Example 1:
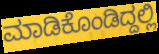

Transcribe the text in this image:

ಮಾಡಿಕೊಂಡಿದ್ದಲ್ಲಿ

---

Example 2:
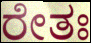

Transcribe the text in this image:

ರೇತಃ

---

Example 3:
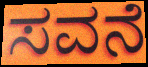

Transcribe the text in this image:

ಸವನೆ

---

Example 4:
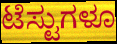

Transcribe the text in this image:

ಟೆಸ್ಟುಗಳೂ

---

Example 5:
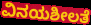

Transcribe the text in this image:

ವಿನಯಶೀಲತೆ